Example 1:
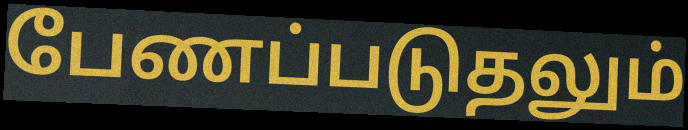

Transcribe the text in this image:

பேணப்படுதலும்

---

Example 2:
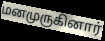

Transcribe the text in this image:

மனமுருகினார்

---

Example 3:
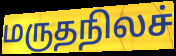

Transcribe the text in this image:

மருதநிலச்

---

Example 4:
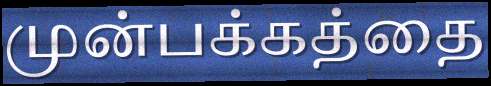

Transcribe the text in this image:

முன்பக்கத்தை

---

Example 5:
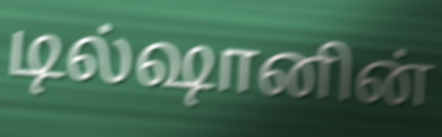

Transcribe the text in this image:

டில்ஷானின்